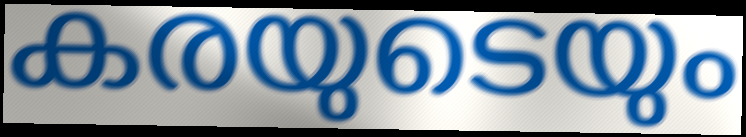
കരയുടെയും